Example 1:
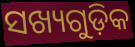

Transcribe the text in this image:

ସଖ୍ୟଗୁଡ଼ିକ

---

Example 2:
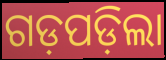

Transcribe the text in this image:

ଗଡ଼ପଡ଼ିଲା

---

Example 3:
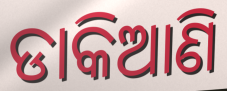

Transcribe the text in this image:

ଡାକିଆଣି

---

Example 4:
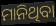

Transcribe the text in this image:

ମାନିଥିବା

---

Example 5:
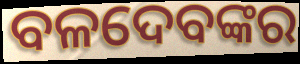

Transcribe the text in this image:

ବଳଦେବଙ୍କର